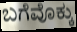
ಬಗೆವೊಕ್ಕು